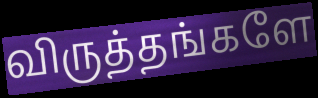
விருத்தங்களே